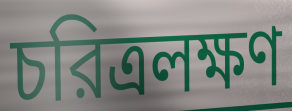
চরিত্রলক্ষণ